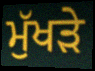
ਮੁੱਖੜੇ